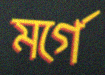
মর্গে